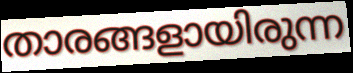
താരങ്ങളായിരുന്ന